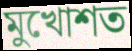
মুখোশত